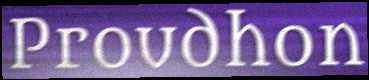
Proudhon